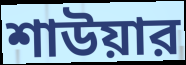
শাউয়ার